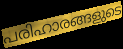
പരിഹാരങ്ങളുടെ